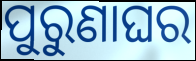
ପୁରୁଣାଘର